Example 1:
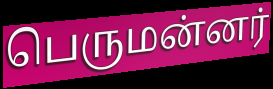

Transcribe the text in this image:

பெருமன்னர்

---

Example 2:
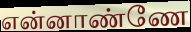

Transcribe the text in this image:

என்னாண்ணே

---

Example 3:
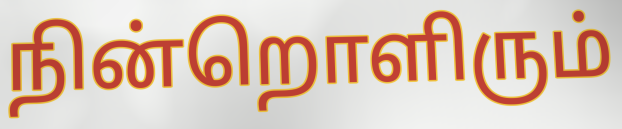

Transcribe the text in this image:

நின்றொளிரும்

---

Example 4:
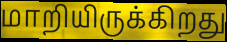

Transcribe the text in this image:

மாறியிருக்கிறது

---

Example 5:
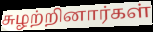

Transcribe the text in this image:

சுழற்றினார்கள்